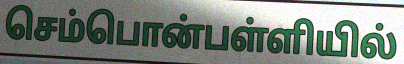
செம்பொன்பள்ளியில்